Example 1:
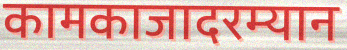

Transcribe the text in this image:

कामकाजादरम्यान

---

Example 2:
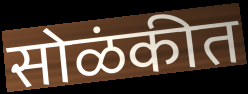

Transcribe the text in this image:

सोळंकीत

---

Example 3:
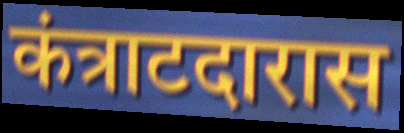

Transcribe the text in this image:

कंत्राटदारास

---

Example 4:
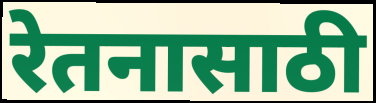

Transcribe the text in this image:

रेतनासाठी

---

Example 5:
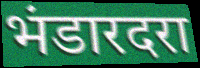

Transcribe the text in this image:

भंडारदरा